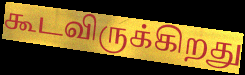
கூடவிருக்கிறது